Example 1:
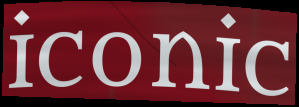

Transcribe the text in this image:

iconic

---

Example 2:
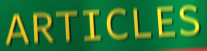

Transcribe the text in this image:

ARTICLES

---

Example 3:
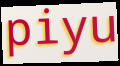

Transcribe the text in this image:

piyu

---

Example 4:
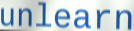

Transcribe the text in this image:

unlearn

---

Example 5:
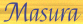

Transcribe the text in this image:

Masura